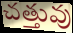
చత్తువు